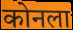
कोनला